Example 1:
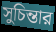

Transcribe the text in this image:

সুচিন্তার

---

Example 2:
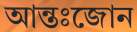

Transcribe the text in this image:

আন্তঃজোন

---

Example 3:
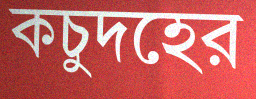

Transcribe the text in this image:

কচুদহের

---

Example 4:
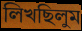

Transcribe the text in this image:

লিখছিলুম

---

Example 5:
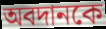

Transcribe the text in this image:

অবদানকে